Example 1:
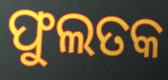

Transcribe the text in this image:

ଫୁଲତକ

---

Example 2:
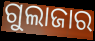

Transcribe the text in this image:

ଗୁଲାଜାର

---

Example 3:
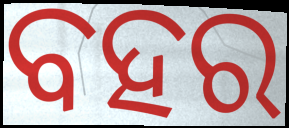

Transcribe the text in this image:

ବହର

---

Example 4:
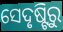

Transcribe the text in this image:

ସେଦୃଷ୍ଟିରୁ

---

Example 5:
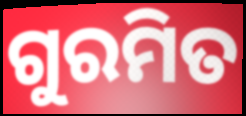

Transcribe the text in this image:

ଗୁରମିତ